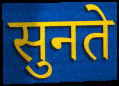
सुनते